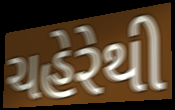
ચહેરેથી